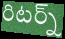
రిటర్న్